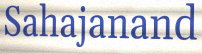
Sahajanand